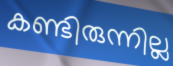
കണ്ടിരുന്നില്ല